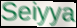
Seiyya